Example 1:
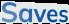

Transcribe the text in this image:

Saves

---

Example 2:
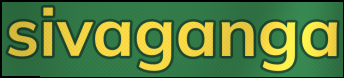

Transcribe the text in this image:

sivaganga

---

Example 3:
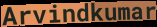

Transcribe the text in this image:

Arvindkumar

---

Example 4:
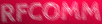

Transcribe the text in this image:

RFCOMM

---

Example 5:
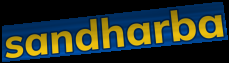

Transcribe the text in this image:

sandharba